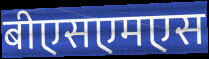
बीएसएमएस